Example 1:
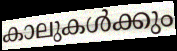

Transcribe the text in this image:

കാലുകൾക്കും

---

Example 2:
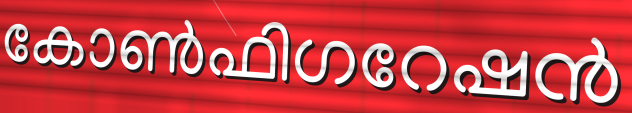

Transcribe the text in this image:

കോൺഫിഗറേഷൻ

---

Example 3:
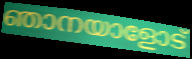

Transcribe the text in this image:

ഞാനയാളോട്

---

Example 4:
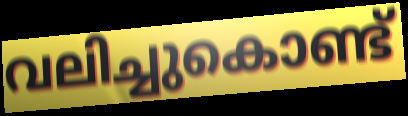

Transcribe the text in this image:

വലിച്ചുകൊണ്ട്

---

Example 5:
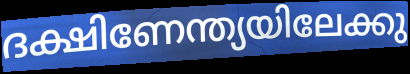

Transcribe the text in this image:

ദക്ഷിണേന്ത്യയിലേക്കു